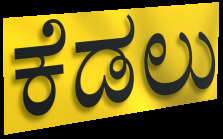
ಕೆಡಲು